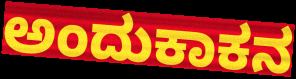
ಅಂದುಕಾಕನ